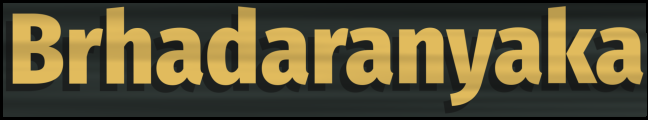
Brhadaranyaka